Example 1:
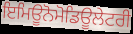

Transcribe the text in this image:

ਇਮਿਊਨੋਮੋਡਿਊਲੇਟਰੀ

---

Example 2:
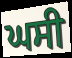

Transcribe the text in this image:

ਘਸੀ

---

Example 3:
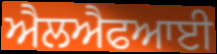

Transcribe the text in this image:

ਐਲਐਫਆਈ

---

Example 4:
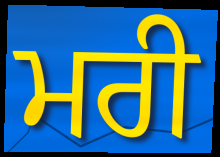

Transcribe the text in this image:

ਮਰੀ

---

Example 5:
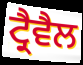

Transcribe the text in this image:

ਟ੍ਰੈਵੈਲ